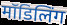
मॉडिलिंग